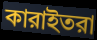
কারাইতরা